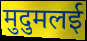
मुदुमलई